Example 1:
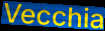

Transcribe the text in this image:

Vecchia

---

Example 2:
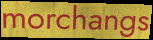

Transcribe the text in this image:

morchangs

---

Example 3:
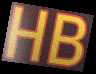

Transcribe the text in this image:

HB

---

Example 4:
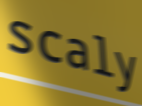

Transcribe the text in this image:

scaly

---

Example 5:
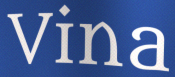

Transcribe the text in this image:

Vina